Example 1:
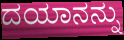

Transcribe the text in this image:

ದಯಾನನ್ನು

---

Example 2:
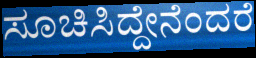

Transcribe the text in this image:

ಸೂಚಿಸಿದ್ದೇನೆಂದರೆ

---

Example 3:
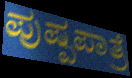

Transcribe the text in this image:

ಪುಷ್ಪಪಾತ್ರೆ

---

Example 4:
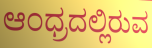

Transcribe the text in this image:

ಆಂಧ್ರದಲ್ಲಿರುವ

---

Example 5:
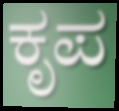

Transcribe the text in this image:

ಕೃಪ